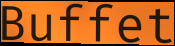
Buffet